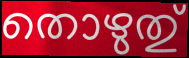
തൊഴുതു്